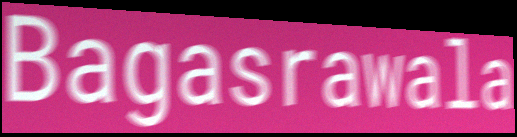
Bagasrawala